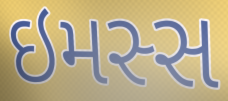
ઇમસ્સ